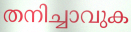
തനിച്ചാവുക